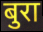
बुरा